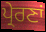
ਪ੍ਰੇਰਣਾਂ